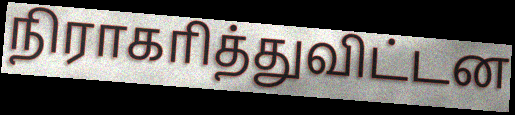
நிராகரித்துவிட்டன